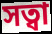
সত্বা